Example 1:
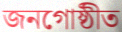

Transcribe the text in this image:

জনগোষ্ঠীত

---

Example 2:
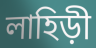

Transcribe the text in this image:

লাহিড়ী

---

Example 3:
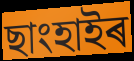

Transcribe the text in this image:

ছাংহাইৰ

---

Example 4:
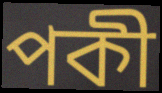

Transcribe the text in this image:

পকী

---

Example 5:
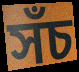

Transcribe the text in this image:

সঁচ